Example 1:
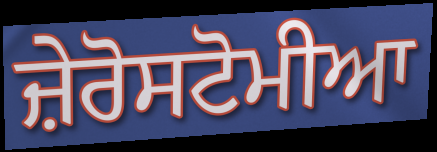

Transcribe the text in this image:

ਜ਼ੇਰੋਸਟੋਮੀਆ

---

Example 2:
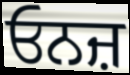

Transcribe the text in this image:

ਓਨਜ਼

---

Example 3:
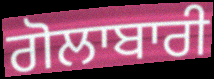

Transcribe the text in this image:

ਗੋਲਾਬਾਰੀ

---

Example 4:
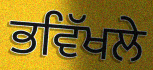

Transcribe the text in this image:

ਭਵਿੱਖਲੇ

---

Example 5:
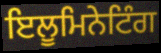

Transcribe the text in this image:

ਇਲੂਮਿਨੇਟਿੰਗ